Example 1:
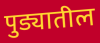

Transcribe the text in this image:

पुड्यातील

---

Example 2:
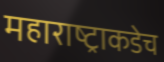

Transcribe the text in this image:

महाराष्ट्राकडेच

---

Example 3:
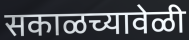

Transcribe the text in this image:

सकाळच्यावेळी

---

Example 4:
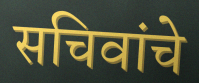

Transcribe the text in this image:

सचिवांचे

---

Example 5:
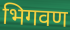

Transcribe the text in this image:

भिगवण